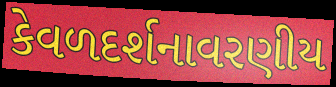
કેવળદર્શનાવરણીય